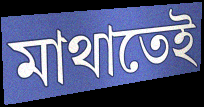
মাথাতেই